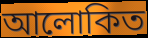
আলোকিত